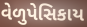
વેળુપેસિકાય